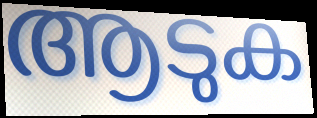
ആടുക